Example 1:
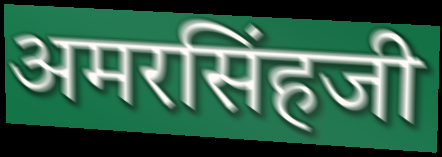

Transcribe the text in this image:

अमरसिंहजी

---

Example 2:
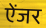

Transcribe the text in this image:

ऐंजर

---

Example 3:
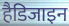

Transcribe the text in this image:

हैडिजाइन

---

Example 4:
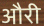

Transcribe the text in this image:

औरी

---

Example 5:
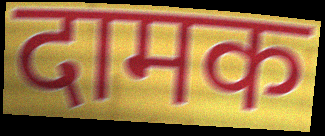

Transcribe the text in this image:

दामक